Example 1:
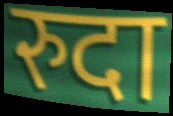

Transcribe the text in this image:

रुदा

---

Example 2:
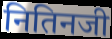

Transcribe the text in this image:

नितिनजी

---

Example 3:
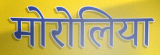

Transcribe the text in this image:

मोरोलिया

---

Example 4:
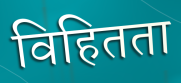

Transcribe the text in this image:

विहितता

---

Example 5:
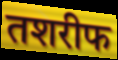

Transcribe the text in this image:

तशरीफ